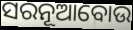
ସରନୂଆବୋଉ